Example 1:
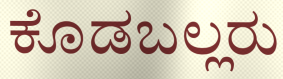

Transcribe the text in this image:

ಕೊಡಬಲ್ಲರು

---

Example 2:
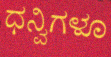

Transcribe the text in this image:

ಧನ್ವಿಗಳೂ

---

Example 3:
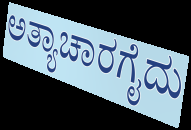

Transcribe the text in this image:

ಅತ್ಯಾಚಾರಗೈದು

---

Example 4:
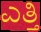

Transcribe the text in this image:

ಎತ್ತಿ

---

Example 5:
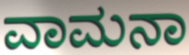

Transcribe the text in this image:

ವಾಮನಾ